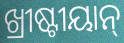
ଖ୍ରୀଷ୍ଟୀୟାନ୍